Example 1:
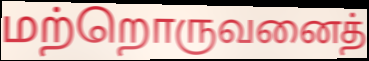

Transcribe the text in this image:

மற்றொருவனைத்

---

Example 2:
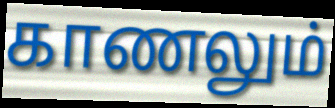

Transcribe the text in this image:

காணலும்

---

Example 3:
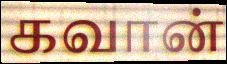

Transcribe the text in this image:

கவான்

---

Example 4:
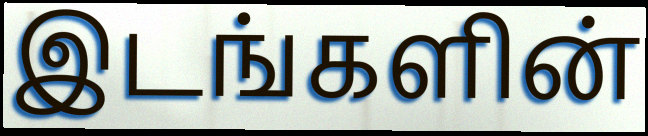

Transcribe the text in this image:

இடங்களின்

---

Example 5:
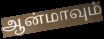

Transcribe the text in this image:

ஆன்மாவும்